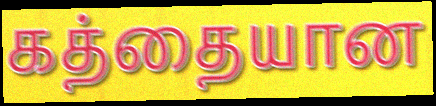
கத்தையான